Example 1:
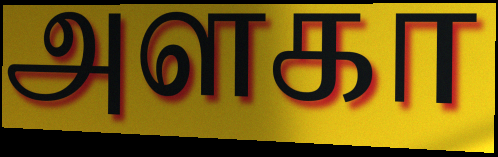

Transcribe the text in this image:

அளகா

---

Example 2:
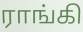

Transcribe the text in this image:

ராங்கி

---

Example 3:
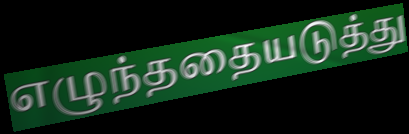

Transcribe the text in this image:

எழுந்ததையடுத்து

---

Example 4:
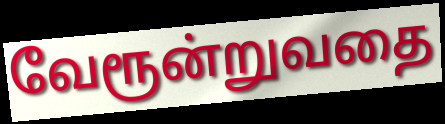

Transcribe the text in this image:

வேரூன்றுவதை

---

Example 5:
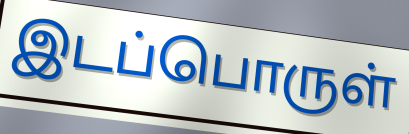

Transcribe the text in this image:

இடப்பொருள்